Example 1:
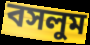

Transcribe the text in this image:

বসলুম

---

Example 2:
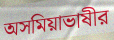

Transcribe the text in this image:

অসমিয়াভাষীর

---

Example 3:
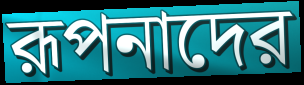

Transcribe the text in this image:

রূপনাদের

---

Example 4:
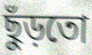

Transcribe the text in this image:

ছুঁড়তো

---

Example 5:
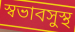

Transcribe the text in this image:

স্বভাবসুস্থ